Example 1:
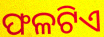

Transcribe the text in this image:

ଫଳଟିଏ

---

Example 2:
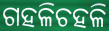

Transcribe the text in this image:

ଗହଳିଚହଳି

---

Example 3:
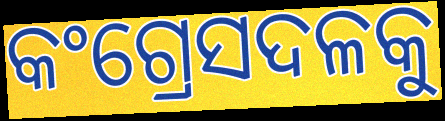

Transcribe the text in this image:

କଂଗ୍ରେସଦଳକୁ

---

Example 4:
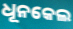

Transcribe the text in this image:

ଧୂନକେଲ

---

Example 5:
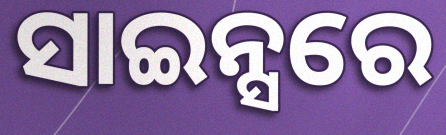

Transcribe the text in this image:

ସାଇନ୍ସରେ